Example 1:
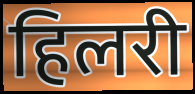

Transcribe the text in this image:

हिलरी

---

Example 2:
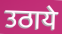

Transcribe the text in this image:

उठाये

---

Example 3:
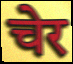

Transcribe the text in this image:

चेर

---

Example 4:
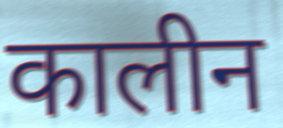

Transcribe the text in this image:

कालीन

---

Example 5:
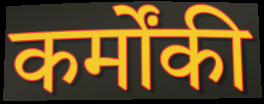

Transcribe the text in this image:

कर्मोंकी